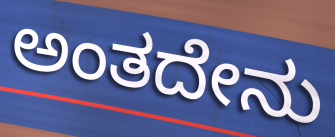
ಅಂತದೇನು